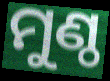
ମୁଣ୍ଠ